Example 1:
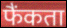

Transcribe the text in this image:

फैंकता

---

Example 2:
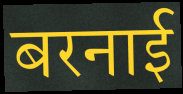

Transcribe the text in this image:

बरनाई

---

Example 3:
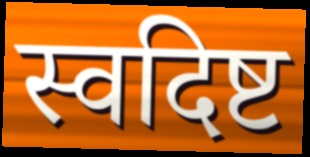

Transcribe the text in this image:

स्वदिष्ट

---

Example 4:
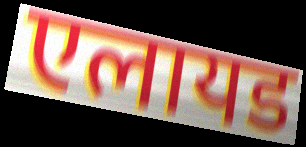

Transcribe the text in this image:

एलायड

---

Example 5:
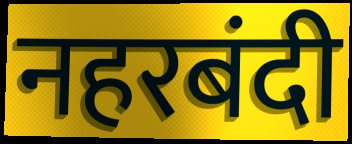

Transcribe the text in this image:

नहरबंदी